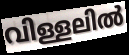
വിള്ളലിൽ